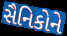
સૈનિકોને